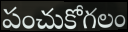
పంచుకోగలం